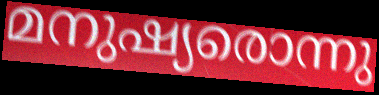
മനുഷ്യരൊന്നു